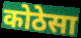
कोठेसा